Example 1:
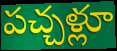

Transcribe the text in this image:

పచ్చళ్లూ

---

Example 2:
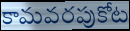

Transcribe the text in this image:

కామవరపుకోట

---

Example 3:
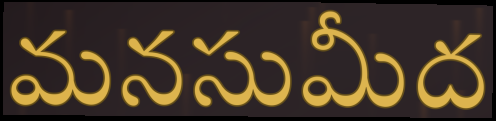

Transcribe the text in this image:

మనసుమీద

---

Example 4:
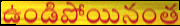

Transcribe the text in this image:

ఉండిపోయినంత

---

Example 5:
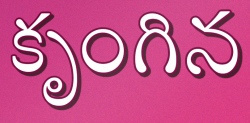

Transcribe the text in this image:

కృంగిన